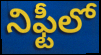
నిఫ్టీలో